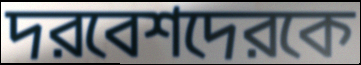
দরবেশদেরকে